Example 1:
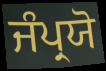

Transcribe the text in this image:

ਜੰਪ੍ਰਯੋ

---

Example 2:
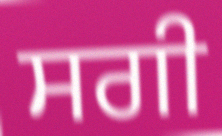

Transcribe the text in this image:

ਸਗੀ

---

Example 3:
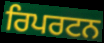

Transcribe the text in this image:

ਰਿਪਰਟਨ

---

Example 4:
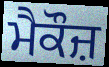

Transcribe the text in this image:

ਮੈਕੌਜ਼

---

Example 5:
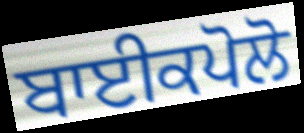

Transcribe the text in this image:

ਬਾਈਕਪੋਲੋ